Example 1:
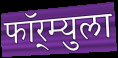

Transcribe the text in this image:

फॉर्म्युला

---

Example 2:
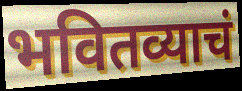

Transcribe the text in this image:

भवितव्याचं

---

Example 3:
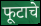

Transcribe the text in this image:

फूटाचे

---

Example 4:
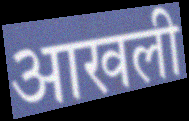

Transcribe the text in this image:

आखली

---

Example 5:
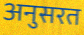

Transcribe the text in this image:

अनुसरत